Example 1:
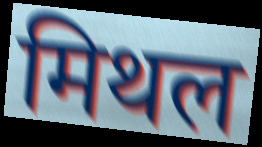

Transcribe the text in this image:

मिथल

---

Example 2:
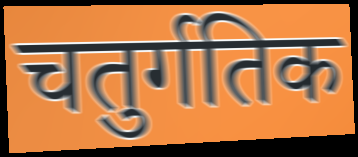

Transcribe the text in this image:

चतुर्गतिक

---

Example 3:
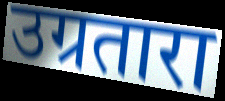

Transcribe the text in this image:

उग्रतारा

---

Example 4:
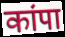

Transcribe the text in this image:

कांपा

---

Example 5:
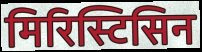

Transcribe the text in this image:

मिरिस्टिसिन